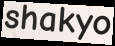
shakyo